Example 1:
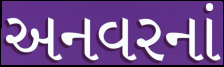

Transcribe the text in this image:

અનવરનાં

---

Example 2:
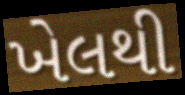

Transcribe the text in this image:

ખેલથી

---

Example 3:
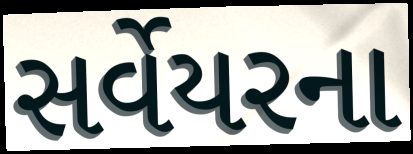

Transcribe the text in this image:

સર્વેયરના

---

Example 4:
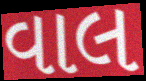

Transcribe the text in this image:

વાલ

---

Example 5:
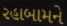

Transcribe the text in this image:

રહાબામને